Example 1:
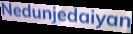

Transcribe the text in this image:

Nedunjedaiyan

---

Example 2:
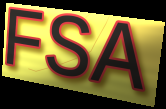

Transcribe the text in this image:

FSA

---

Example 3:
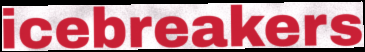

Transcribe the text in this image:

icebreakers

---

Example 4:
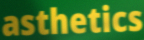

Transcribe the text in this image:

asthetics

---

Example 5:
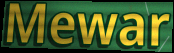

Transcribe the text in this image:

Mewar